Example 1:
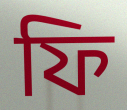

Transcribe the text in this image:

ফি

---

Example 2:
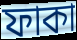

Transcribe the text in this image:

ফাকা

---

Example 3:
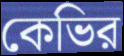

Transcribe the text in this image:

কেভির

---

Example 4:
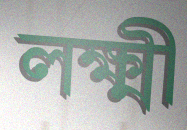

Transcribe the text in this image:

লক্ষ্মী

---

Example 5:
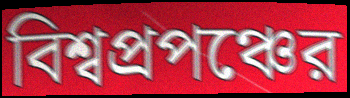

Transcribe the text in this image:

বিশ্বপ্রপঞ্চের